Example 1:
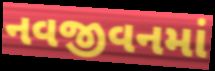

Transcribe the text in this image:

નવજીવનમાં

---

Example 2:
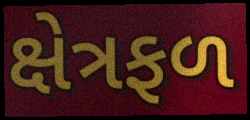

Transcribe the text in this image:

ક્ષેત્રફળ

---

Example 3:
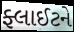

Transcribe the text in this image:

ફ્લાઈટને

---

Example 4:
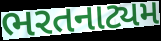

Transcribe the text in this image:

ભરતનાટ્યમ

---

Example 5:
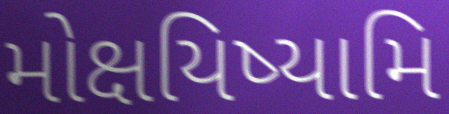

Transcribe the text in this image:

મોક્ષયિષ્યામિ